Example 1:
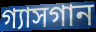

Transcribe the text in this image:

গ্যাসগান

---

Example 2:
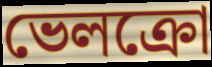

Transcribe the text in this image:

ভেলক্রো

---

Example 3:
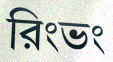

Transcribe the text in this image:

রিংভং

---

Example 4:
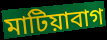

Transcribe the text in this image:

মাটিয়াবাগ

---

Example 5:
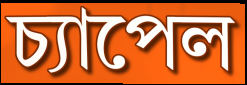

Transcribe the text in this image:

চ্যাপেল